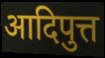
आदिपुत्त